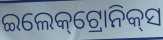
ଇଲେକ୍‌ଟ୍ରୋନିକ୍‌ସ